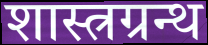
शास्त्रग्रन्थ